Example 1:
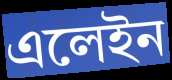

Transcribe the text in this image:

এলেইন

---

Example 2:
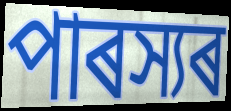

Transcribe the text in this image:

পাৰস্যৰ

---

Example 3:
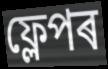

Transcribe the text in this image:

ফ্লেপৰ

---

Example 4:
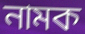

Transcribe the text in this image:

নামক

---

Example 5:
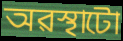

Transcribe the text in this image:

অৱস্থাটো